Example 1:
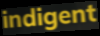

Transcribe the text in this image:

indigent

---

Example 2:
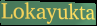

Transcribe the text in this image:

Lokayukta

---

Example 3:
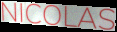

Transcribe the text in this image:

NICOLAS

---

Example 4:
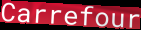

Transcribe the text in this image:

Carrefour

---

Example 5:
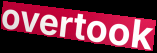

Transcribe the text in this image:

overtook